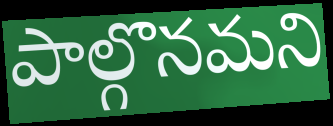
పాల్గొనమని